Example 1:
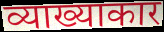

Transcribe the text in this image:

व्याख्याकार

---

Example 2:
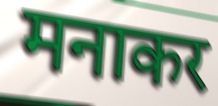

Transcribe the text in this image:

मनाकर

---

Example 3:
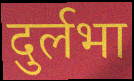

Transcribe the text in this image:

दुर्लभा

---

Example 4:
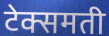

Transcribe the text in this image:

टेक्समती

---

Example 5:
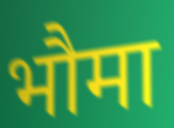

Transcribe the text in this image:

भौमा